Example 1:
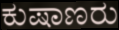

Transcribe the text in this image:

ಕುಷಾಣರು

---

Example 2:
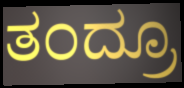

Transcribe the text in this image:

ತಂದ್ರೂ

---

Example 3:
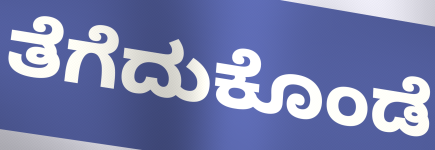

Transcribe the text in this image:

ತೆಗೆದುಕೊಂಡೆ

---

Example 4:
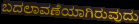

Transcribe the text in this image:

ಬದಲಾವಣೆಯಾಗಿರುವುದು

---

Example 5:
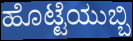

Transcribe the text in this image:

ಹೊಟ್ಟೆಯುಬ್ಬಿ